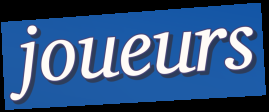
joueurs